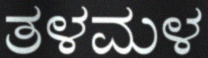
ತಳಮಳ